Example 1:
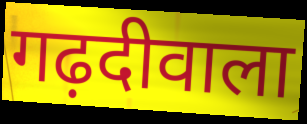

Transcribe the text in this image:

गढ़दीवाला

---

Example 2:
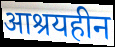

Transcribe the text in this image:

आश्रयहीन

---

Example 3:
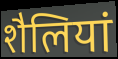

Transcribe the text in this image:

शैलियां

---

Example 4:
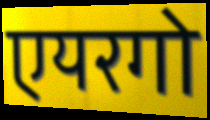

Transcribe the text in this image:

एयरगो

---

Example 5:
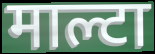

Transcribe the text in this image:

माल्टा